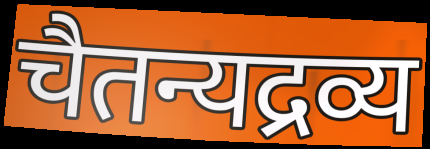
चैतन्यद्रव्य